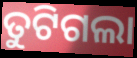
ତୁଟିଗଲା